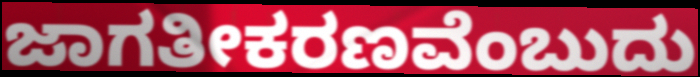
ಜಾಗತೀಕರಣವೆಂಬುದು